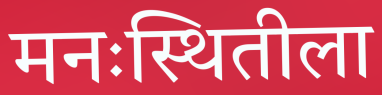
मनःस्थितीला